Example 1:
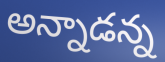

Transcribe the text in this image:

అన్నాడన్న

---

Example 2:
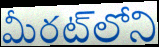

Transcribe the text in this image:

మీరట్‌లోని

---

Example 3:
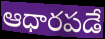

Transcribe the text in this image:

ఆధారపడే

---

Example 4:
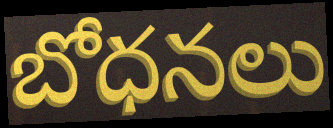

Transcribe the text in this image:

బోధనలు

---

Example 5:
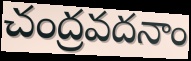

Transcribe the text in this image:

చంద్రవదనాం